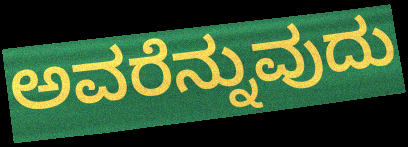
ಅವರೆನ್ನುವುದು